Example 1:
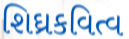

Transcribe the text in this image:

શિઘ્રકવિત્વ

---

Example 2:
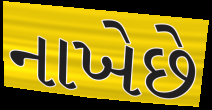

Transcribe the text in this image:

નાખેછે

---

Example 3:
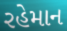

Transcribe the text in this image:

રહેમાન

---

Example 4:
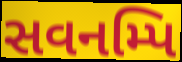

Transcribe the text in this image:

સવનમ્પિ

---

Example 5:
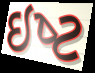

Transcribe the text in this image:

ઇષ્‍ટ